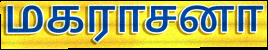
மகராசனா